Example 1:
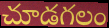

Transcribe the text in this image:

చూడగలం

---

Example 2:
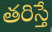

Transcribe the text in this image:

తరిస్తే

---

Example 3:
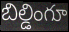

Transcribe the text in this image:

బిల్డింగూ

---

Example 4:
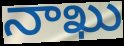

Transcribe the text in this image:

నాఖు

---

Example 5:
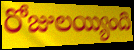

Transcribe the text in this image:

రోజులయ్యింది